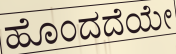
ಹೊಂದದೆಯೇ